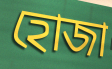
হোজা